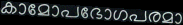
കാമോപഭോഗപരമാ